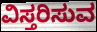
ವಿಸ್ತರಿಸುವ